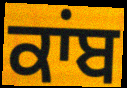
ਕਾਂਬ